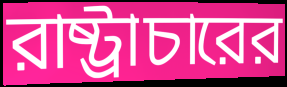
রাষ্ট্রাচারের